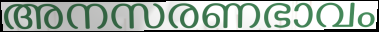
അനസരണഭാവം